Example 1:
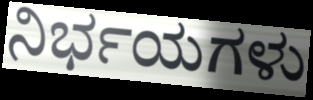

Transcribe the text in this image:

ನಿರ್ಭಯಗಳು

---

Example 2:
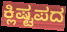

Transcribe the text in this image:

ಕ್ಲಿಷ್ಟಪದ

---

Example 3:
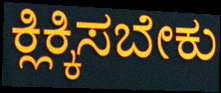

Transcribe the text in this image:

ಕ್ಲಿಕ್ಕಿಸಬೇಕು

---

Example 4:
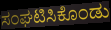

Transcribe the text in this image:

ಸಂಘಟಿಸಿಕೊಂಡು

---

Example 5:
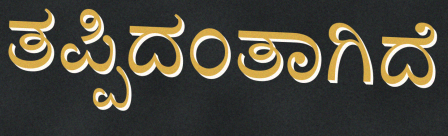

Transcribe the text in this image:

ತಪ್ಪಿದಂತಾಗಿದೆ